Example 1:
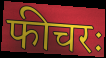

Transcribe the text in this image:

फीचरः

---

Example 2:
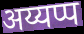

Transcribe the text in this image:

अय्यप्प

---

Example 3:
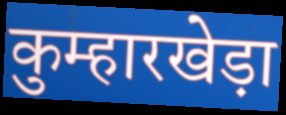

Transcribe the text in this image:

कुम्हारखेड़ा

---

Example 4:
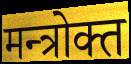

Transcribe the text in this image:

मन्त्रोक्त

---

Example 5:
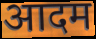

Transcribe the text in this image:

आदम